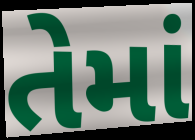
તેમાં